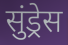
सुंड्रेस